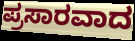
ಪ್ರಸಾರವಾದ